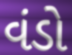
વંડો